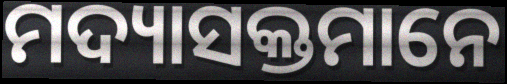
ମଦ୍ୟାସକ୍ତମାନେ